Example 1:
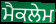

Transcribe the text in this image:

ਮੈਕਲੇਮ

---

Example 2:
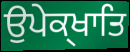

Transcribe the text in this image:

ਉਪੇਕ੍ਖਾਤਿ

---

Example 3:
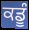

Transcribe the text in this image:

ਕਡੂੰ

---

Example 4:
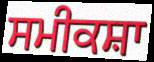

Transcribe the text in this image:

ਸਮੀਕਸ਼ਾ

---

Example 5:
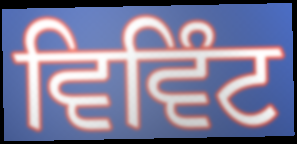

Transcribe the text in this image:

ਵਿਵਿੰਟ